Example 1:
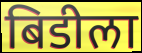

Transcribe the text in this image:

बिडीला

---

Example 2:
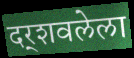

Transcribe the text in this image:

दर्शवलेला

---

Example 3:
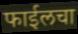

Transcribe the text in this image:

फाईलचा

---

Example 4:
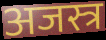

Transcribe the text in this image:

अजस्त्र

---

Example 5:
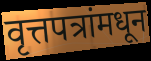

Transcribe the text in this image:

वृत्तपत्रांमधून